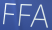
FFA